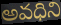
అవధిని